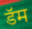
डॅम